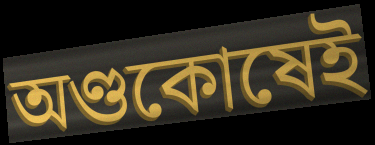
অণ্ডকোষেই